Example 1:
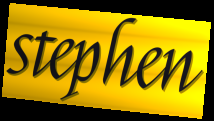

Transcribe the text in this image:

stephen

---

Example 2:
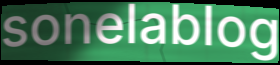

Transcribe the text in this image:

sonelablog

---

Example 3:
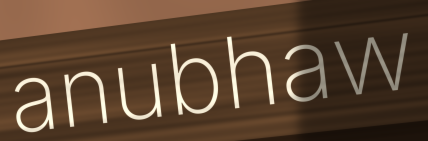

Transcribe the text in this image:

anubhaw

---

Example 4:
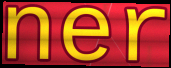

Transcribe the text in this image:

ner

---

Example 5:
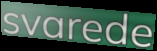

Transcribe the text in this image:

svarede